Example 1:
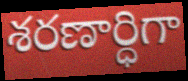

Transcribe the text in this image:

శరణార్ధిగా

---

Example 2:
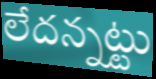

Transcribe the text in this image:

లేదన్నట్టు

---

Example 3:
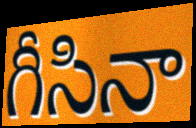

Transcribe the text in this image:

గీసినా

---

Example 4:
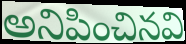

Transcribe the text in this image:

అనిపించినవి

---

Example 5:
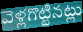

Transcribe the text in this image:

వెళ్లగొట్టినట్లు